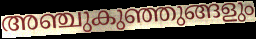
അഞ്ചുകുഞ്ഞുങ്ങളും